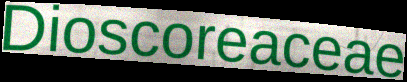
Dioscoreaceae